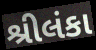
શ્રીલંકા